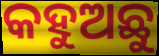
କହୁଅଛୁ